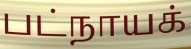
பட்நாயக்